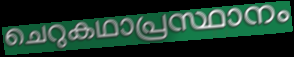
ചെറുകഥാപ്രസ്ഥാനം